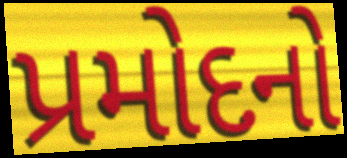
પ્રમોદનો